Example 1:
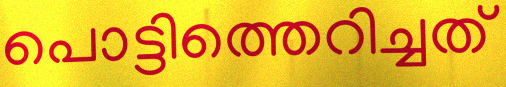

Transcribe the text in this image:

പൊട്ടിത്തെറിച്ചത്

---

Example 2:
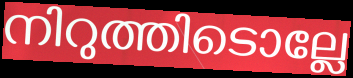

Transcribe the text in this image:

നിറുത്തിടൊല്ലേ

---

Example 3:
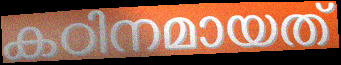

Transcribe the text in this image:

കഠിനമായത്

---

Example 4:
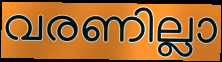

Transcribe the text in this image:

വരണില്ലാ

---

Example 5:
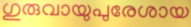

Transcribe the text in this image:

ഗുരുവായുപുരേശായ